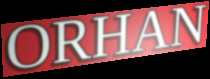
ORHAN